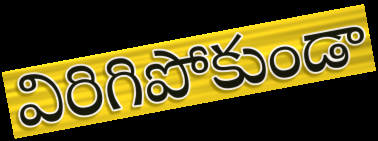
విరిగిపోకుండా